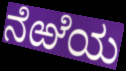
ನೆಱೆಯ